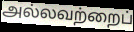
அல்லவற்றைப்